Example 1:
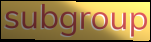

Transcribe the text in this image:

subgroup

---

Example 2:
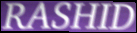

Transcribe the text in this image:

RASHID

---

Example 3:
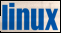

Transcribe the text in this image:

linux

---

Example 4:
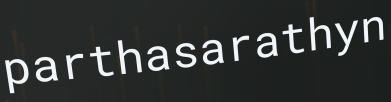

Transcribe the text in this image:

parthasarathyn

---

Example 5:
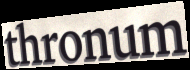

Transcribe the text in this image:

thronum